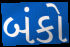
બંકો